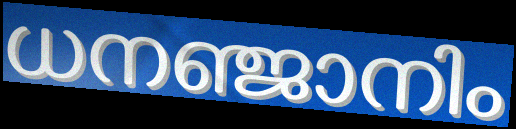
ധനഞ്ജാനിം